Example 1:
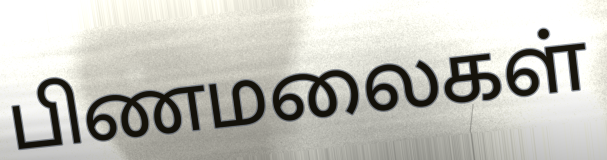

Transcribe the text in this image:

பிணமலைகள்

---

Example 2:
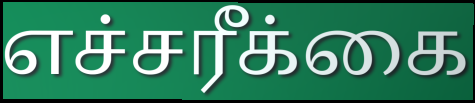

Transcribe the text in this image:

எச்சரீக்கை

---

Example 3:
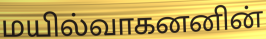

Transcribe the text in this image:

மயில்வாகனனின்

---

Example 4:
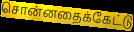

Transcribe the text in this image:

சொன்னதைக்கேட்டு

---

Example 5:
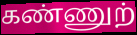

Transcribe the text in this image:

கண்ணுற்